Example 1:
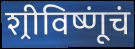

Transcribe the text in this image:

श्रीविष्णूंचं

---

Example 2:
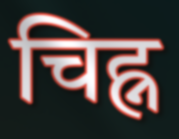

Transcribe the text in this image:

चिह्न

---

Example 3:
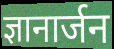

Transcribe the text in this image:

ज्ञानार्जन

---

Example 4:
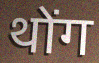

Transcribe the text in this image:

थोंग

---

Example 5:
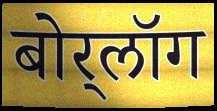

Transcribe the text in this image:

बोर्‌लॉग